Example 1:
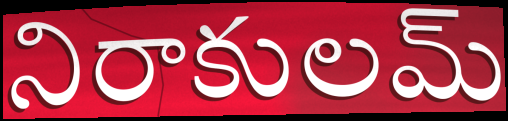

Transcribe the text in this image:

నిరాకులమ్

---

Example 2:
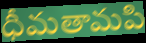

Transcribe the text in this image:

ధీమతామపి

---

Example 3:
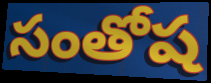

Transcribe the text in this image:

సంతోష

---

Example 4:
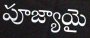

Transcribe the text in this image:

పూజ్యాయై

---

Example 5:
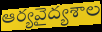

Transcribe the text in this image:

ఆర్యవైద్యశాల